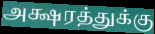
அக்ஷரத்துக்கு